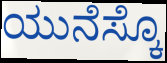
ಯುನೆಸ್ಕೊ